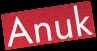
Anuk